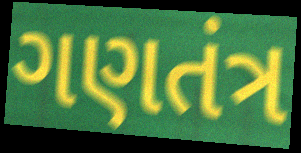
ગણતંત્ર